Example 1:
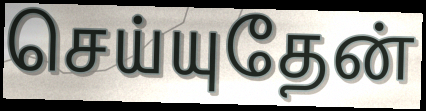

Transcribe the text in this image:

செய்யுதேன்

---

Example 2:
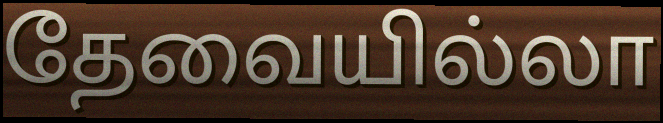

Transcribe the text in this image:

தேவையில்லா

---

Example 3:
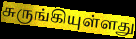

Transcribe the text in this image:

சுருங்கியுள்ளது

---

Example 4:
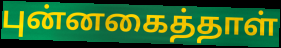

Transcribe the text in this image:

புன்னகைத்தாள்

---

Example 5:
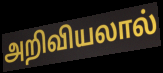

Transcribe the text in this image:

அறிவியலால்